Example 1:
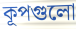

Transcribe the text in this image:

কূপগুলো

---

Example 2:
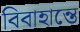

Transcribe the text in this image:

বিবাহান্তে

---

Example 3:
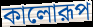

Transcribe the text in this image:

কালোরূপ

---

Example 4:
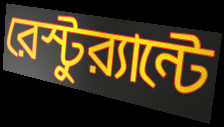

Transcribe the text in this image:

রেস্টুর‍্যান্টে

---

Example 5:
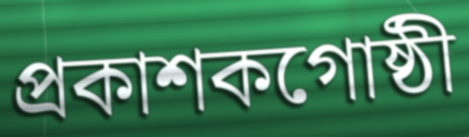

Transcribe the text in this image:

প্রকাশকগোষ্ঠী